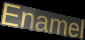
Enamel